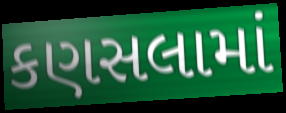
કણસલામાં